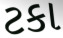
ટકા